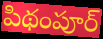
పిథంపూర్